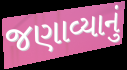
જણાવ્યાનું